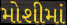
મોશીમાં